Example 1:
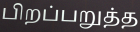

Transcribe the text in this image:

பிறப்பறுத்த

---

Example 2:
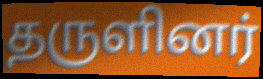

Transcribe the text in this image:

தருளினர்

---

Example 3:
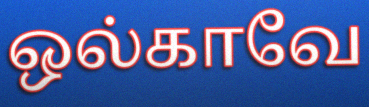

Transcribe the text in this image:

ஒல்காவே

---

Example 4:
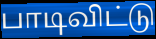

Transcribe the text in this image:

பாடிவிட்டு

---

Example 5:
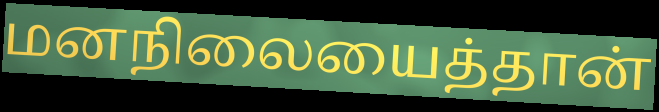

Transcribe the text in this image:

மனநிலையைத்தான்